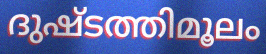
ദുഷ്ടത്തിമൂലം